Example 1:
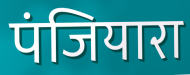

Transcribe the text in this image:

पंजियारा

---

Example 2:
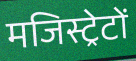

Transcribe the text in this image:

मजिस्ट्रेटों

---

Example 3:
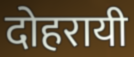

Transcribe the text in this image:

दोहरायी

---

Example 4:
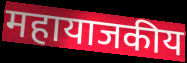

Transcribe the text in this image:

महायाजकीय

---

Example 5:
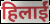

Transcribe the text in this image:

हिलाईं